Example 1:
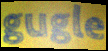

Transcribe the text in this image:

gugle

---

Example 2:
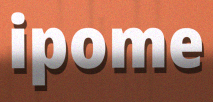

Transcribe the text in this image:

ipome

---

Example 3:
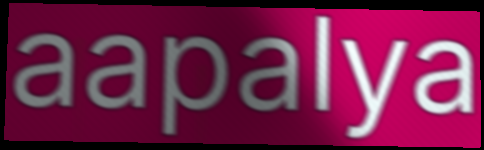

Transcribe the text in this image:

aapalya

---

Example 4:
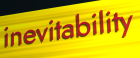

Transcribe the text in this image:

inevitability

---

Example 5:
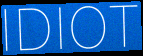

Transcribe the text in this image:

IDIOT